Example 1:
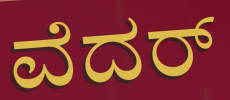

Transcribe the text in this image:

ವೆದರ್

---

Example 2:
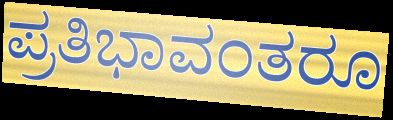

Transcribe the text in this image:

ಪ್ರತಿಭಾವಂತರೂ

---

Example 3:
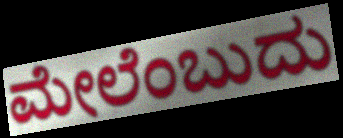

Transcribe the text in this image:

ಮೇಲೆಂಬುದು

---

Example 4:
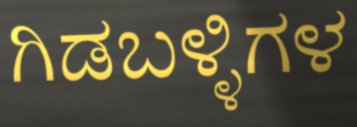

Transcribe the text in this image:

ಗಿಡಬಳ್ಳಿಗಳ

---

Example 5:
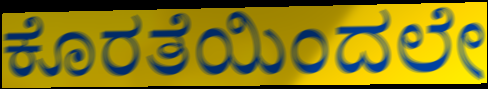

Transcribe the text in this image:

ಕೊರತೆಯಿಂದಲೇ